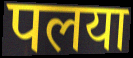
पलया